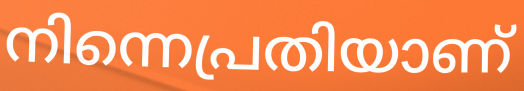
നിന്നെപ്രതിയാണ്